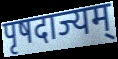
पृषदाज्यम्